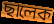
ছালেক